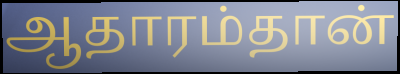
ஆதாரம்தான்